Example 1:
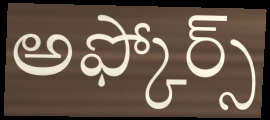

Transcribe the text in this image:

అఫ్కోర్స్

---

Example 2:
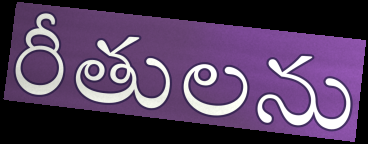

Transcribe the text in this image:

రీతులను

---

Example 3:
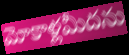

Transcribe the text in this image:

మోకాళ్లమీదను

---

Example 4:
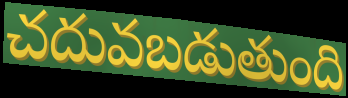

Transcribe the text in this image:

చదువబడుతుంది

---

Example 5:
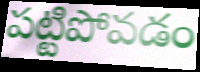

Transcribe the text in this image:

పట్టిపోవడం